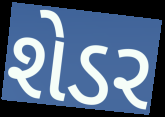
શેડર